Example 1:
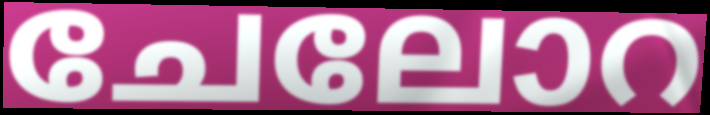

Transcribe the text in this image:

ചേലോറ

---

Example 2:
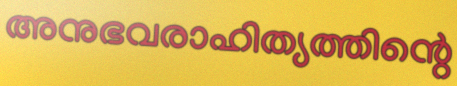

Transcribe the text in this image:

അനുഭവരാഹിത്യത്തിന്റെ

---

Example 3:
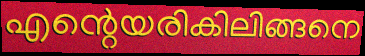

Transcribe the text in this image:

എന്റെയരികിലിങ്ങനെ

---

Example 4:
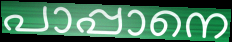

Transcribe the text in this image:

പാപ്പാനെ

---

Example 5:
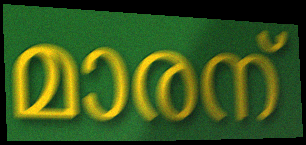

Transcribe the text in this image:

മാരന്